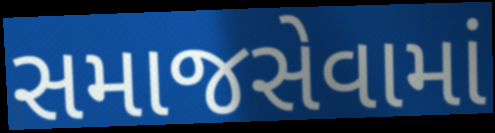
સમાજસેવામાં